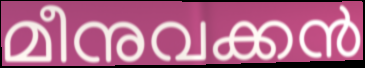
മീനുവക്കൻ